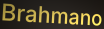
Brahmano